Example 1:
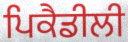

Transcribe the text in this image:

ਪਿਕੈਡੀਲੀ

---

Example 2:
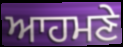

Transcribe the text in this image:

ਆਹਮਣੇ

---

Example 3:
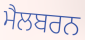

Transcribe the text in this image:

ਮੈਲਬਰਨ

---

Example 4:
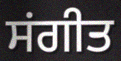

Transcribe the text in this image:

ਸਂਗੀਤ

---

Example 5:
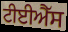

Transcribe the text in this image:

ਟੀਈਐੱਸ